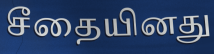
சீதையினது